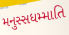
મનુસ્સધમ્માતિ